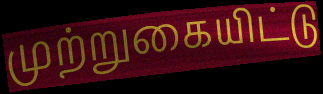
முற்றுகையிட்டு